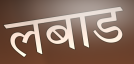
लबाड